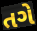
તગે